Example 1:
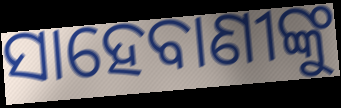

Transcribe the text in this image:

ସାହେବାଣୀଙ୍କୁ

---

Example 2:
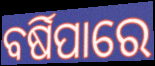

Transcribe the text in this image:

ବର୍ଷିପାରେ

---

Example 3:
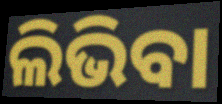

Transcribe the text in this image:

ଲିଭିବା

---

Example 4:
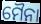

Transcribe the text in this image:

ମୈନା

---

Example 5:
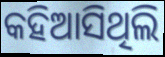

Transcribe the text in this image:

କହିଆସିଥିଲି